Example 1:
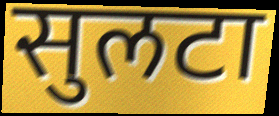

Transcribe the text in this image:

सुलटा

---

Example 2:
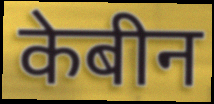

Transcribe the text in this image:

केबीन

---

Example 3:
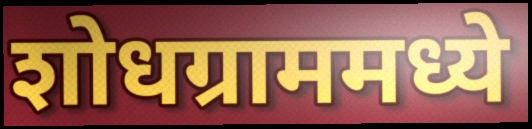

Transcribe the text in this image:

शोधग्राममध्ये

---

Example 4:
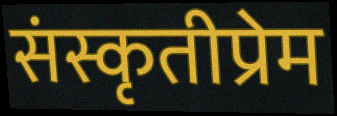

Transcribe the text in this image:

संस्कृतीप्रेम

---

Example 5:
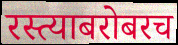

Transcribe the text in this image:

रस्त्याबरोबरच